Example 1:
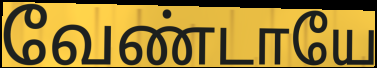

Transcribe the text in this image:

வேண்டாயே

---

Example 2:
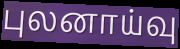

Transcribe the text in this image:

புலனாய்வு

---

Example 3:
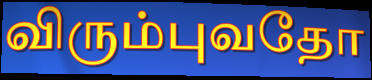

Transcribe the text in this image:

விரும்புவதோ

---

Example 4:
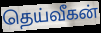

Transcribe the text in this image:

தெய்வீகன்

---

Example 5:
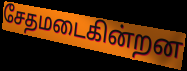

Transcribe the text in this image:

சேதமடைகின்றன